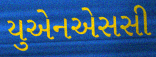
યુએનએસસી